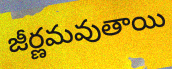
జీర్ణమవుతాయి